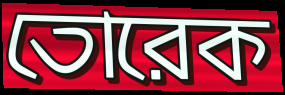
তোরেক